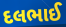
દલભાઈ